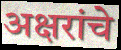
अक्षरांचे